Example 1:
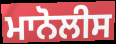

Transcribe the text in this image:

ਮਾਨੋਲੀਸ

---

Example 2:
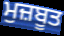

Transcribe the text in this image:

ਮੁਜ਼ਬੂਤ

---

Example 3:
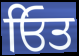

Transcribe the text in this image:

ਓਿਤ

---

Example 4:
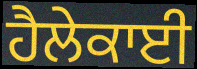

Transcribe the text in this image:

ਹੈਲੇਕਾਈ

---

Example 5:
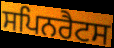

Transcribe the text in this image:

ਸਪਿਨਰੈਟਸ